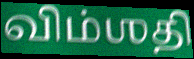
விம்ஶதி